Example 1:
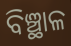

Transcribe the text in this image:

ବିଞ୍ଛାଳ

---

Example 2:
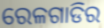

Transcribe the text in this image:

ରେଳଗାଡିର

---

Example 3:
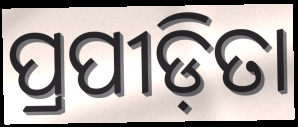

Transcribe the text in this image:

ପ୍ରପୀଡ଼ିତା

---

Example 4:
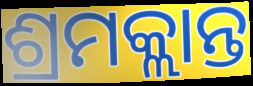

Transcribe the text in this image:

ଶ୍ରମକ୍ଲାନ୍ତ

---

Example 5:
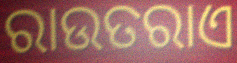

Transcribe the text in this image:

ରାଉତରାଏ